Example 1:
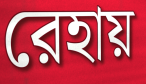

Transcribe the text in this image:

রেহায়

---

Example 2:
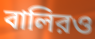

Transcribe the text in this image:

বালিরও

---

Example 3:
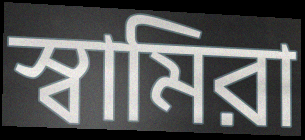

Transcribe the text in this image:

স্বামিরা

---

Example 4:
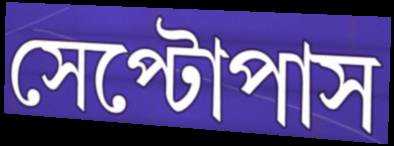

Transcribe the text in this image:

সেপ্টোপাস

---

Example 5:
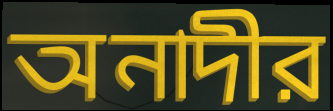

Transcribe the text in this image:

অনাদীর